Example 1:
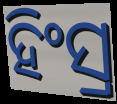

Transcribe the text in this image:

ହିଂସ୍ର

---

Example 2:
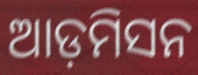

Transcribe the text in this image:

ଆଡ଼ମିସନ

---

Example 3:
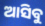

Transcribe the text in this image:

ଆସିବୁ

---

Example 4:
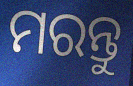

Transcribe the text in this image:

ମରନ୍ତୁ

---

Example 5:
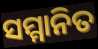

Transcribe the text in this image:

ସମ୍ମାନିତ